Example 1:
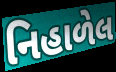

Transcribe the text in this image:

નિહાળેલ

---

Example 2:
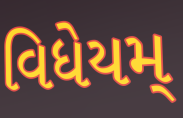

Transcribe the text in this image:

વિધેયમ્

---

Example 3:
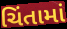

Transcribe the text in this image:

ચિંતામાં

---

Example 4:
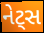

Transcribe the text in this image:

નેટ્સ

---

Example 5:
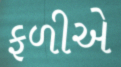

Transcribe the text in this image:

ફળીએ